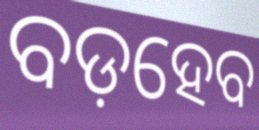
ବଡ଼ହେବ